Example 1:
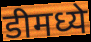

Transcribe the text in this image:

डीमध्ये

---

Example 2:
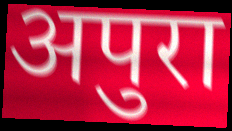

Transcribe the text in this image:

अपुरा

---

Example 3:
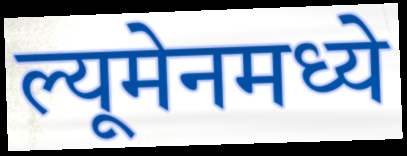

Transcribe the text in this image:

ल्यूमेनमध्ये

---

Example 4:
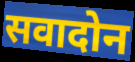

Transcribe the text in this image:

सवादोन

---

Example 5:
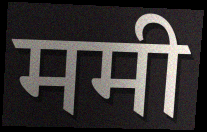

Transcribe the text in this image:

ममी